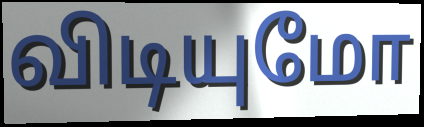
விடியுமோ